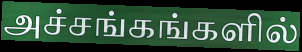
அச்சங்கங்களில்